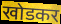
खोडकर